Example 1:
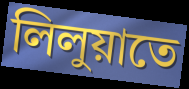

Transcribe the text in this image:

লিলুয়াতে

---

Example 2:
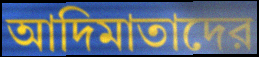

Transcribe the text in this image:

আদিমাতাদের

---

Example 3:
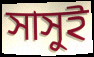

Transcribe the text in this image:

সাসুই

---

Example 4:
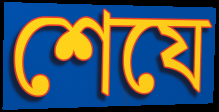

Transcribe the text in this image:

শেযে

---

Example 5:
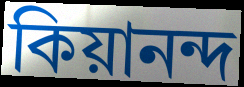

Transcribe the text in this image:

কিয়ানন্দ